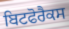
ਬਿਟਫੋਰੈਕਸ